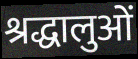
श्रद्धालुओं